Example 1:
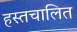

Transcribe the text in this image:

हस्तचालित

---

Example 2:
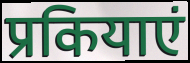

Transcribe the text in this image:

प्रकियाएं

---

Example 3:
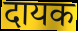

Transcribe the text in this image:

दायक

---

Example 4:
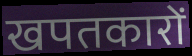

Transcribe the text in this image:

खपतकारों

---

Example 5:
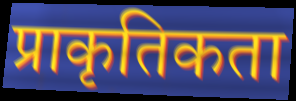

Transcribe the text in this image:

प्राकृतिकता